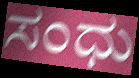
ಸಂಧು